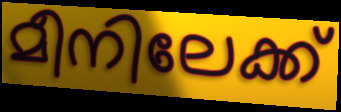
മീനിലേക്ക്